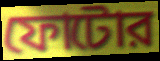
ফোটোর